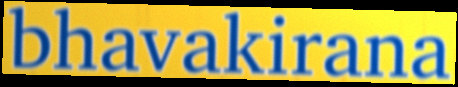
bhavakirana